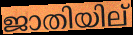
ജാതിയില്